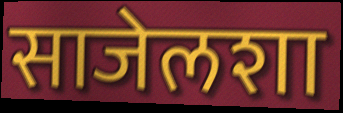
साजेलशा